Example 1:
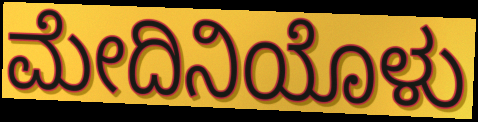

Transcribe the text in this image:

ಮೇದಿನಿಯೊಳು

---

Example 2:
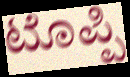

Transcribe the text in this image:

ಟೊಪ್ಪಿ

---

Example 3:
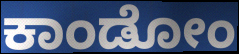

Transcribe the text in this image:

ಕಾಂಡೋಂ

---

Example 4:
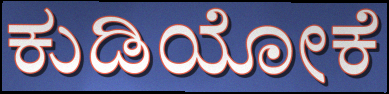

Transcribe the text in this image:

ಕುಡಿಯೋಕೆ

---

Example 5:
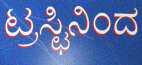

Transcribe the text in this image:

ಟ್ರಸ್ಟಿನಿಂದ